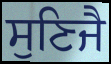
ਸੁਣਿਜੈ